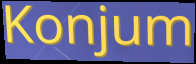
Konjum